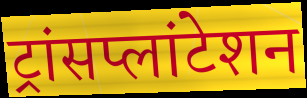
ट्रांसप्लांटेशन